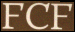
FCF